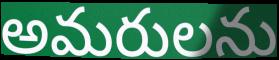
అమరులను